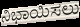
ನಿಭಾಯಿಸಲು